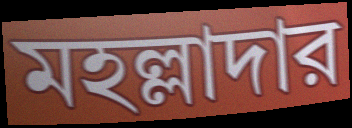
মহল্লাদার